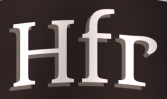
Hfr